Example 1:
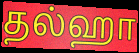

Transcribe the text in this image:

தல்ஹா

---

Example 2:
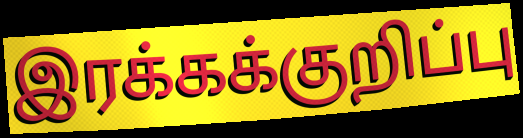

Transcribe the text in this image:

இரக்கக்குறிப்பு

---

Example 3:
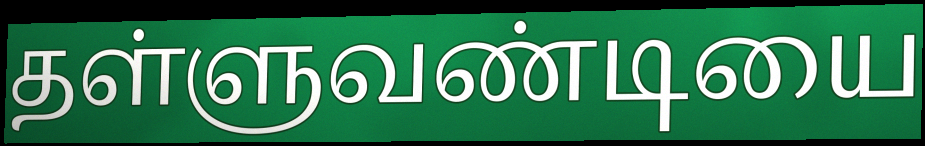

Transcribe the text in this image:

தள்ளுவண்டியை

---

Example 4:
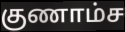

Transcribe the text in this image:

குணாம்ச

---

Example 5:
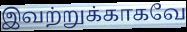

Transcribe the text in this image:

இவற்றுக்காகவே